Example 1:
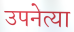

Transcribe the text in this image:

उपनेत्या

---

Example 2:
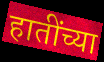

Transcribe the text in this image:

हातींच्या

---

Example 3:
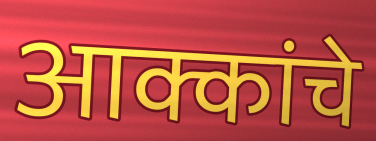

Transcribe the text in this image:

आक्कांचे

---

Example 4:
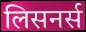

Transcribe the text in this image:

लिसनर्स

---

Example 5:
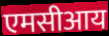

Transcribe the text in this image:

एमसीआय